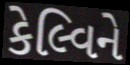
કેલ્વિને